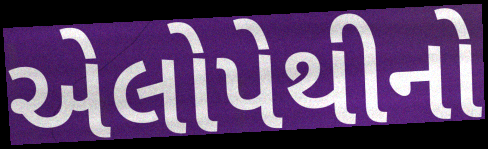
એલોપેથીનો